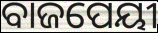
ବାଜପେୟୀ